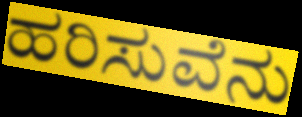
ಹರಿಸುವೆನು